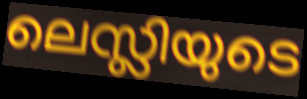
ലെസ്ലിയുടെ